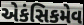
એકંસિકમેવ